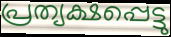
പ്രത്യക്ഷപ്പെട്ടു